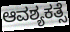
ಆವಶ್ಯಕತ್ಸೆ